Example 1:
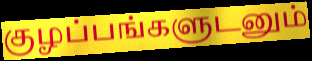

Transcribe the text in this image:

குழப்பங்களுடனும்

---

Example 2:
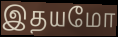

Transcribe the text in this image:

இதயமோ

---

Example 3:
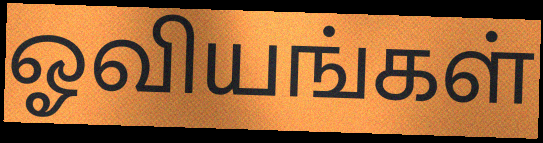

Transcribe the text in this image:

ஓவியங்கள்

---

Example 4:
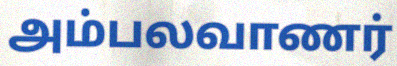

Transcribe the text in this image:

அம்பலவாணர்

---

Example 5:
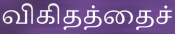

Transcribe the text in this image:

விகிதத்தைச்